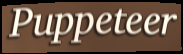
Puppeteer